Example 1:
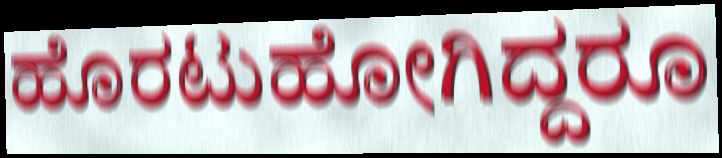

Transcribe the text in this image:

ಹೊರಟುಹೋಗಿದ್ದರೂ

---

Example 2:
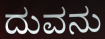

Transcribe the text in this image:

ದುವನು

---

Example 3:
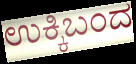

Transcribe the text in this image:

ಉಕ್ಕಿಬಂದ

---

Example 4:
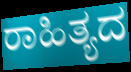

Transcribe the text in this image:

ರಾಹಿತ್ಯದ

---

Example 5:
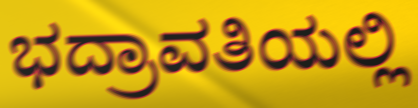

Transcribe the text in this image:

ಭದ್ರಾವತಿಯಲ್ಲಿ